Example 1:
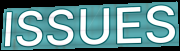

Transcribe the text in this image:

ISSUES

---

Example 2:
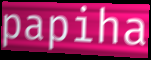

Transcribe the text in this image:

papiha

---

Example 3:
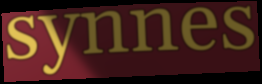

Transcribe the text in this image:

synnes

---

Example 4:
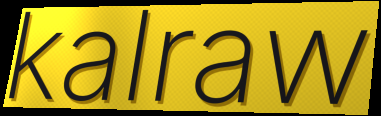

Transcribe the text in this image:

kalraw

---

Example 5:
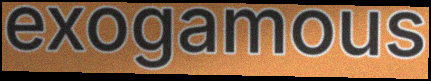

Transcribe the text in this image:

exogamous